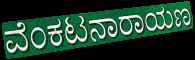
ವೆಂಕಟನಾರಾಯಣ